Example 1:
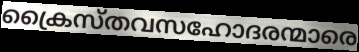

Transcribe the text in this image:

ക്രൈസ്തവസഹോദരന്മാരെ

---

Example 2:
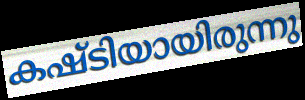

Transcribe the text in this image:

കഷ്ടിയായിരുന്നു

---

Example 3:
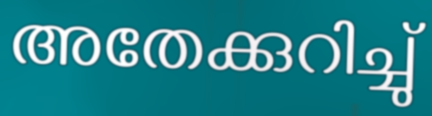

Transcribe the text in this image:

അതേക്കുറിച്ചു്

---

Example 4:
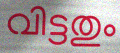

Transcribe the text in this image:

വിട്ടതും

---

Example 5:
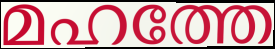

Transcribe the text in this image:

മഹത്തേ